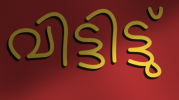
വിട്ടിട്ടു്